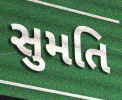
સુમતિ